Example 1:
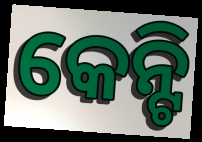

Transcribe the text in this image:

କେନ୍ଟି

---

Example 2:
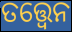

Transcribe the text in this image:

ତତ୍ତ୍ଵେନ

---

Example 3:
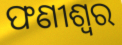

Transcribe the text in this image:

ଫଣୀଶ୍ୱର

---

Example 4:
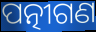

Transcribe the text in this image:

ପତ୍ନୀଗଣ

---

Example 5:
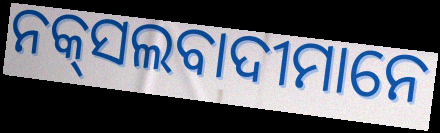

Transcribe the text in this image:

ନକ୍‌ସଲବାଦୀମାନେ